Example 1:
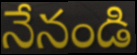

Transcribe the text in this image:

నేనండి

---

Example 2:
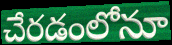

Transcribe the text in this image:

చేరడంలోనూ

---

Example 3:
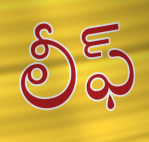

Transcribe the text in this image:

లీఫ్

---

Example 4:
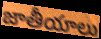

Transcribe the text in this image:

జాతీయాలు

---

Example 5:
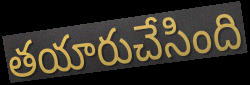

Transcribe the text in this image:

తయారుచేసింది